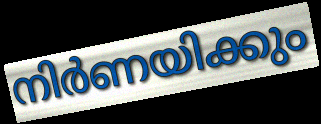
നിർണയിക്കും